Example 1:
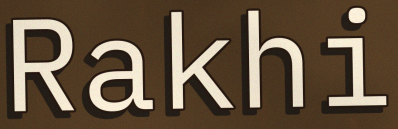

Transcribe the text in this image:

Rakhi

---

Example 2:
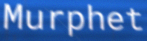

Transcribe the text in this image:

Murphet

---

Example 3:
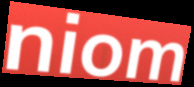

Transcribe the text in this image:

niom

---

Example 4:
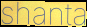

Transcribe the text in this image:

shanta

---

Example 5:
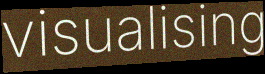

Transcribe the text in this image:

visualising